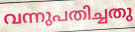
വന്നുപതിച്ചതു